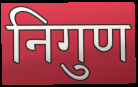
निगुण